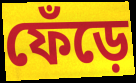
ফেঁড়ে